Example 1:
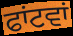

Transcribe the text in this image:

ਫਾਂਟਵਾਂ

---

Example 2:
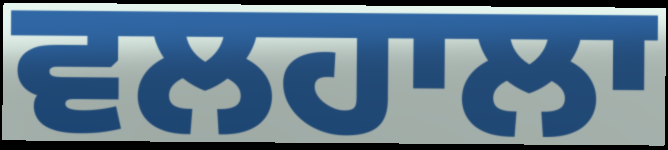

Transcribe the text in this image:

ਵਲਹਾਲਾ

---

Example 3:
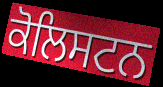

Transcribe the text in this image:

ਕੋਲਿਸਟਨ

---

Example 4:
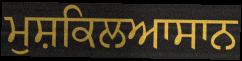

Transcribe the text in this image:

ਮੁਸ਼ਕਿਲਆਸਾਨ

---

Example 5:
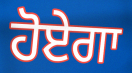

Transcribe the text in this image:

ਹੋਏਗਾ